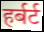
हर्बर्ट